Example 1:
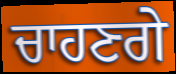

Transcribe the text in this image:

ਚਾਹਣਗੇ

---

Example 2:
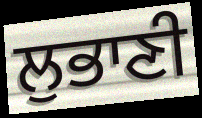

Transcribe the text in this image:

ਲੁਭਾਣੀ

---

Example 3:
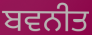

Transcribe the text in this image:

ਬਵਨੀਤ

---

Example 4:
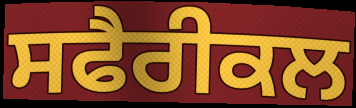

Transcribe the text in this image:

ਸਫੈਰੀਕਲ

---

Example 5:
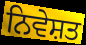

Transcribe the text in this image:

ਨਿਵੇਸ਼ਤ